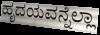
ಹೃದಯವನ್ನೆಲ್ಲಾ